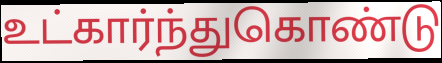
உட்கார்ந்துகொண்டு